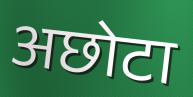
अछोटा